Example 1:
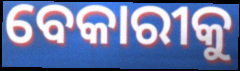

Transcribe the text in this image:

ବେକାରୀକୁ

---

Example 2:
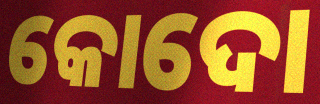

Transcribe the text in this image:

କୋଦୋ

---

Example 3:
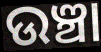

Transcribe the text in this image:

ଉଞ୍ଚା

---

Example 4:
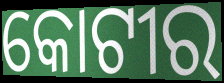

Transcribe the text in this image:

କୋଟୀର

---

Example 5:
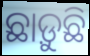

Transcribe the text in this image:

ଛାଡ଼ୁଛି